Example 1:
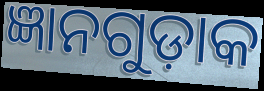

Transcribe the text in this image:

ଜ୍ଞାନଗୁଡ଼ାକ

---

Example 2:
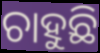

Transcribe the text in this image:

ଚାହୁଛି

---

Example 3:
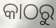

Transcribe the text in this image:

କାଠରୁ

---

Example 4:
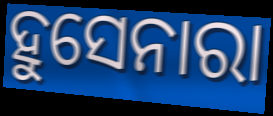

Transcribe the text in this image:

ହୁସେନାରା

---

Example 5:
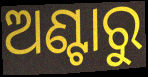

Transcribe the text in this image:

ଅଣ୍ଟାରୁ